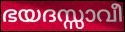
ഭയദസ്സാവീ